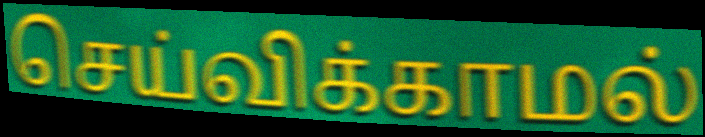
செய்விக்காமல்